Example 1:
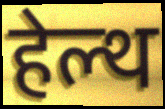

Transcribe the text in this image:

हेल्थ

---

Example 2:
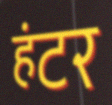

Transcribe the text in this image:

हंटर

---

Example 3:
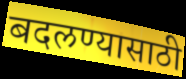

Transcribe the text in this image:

बदलण्यासाठी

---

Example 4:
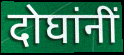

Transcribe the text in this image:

दोघांनीं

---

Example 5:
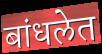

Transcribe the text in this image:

बांधलेत